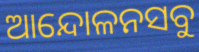
ଆନ୍ଦୋଳନସବୁ